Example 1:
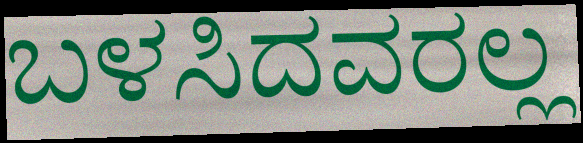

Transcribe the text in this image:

ಬಳಸಿದವರಲ್ಲ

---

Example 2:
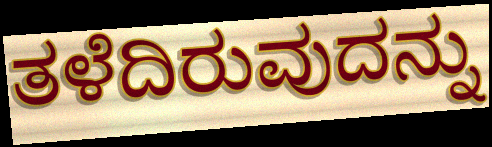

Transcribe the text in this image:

ತಳೆದಿರುವುದನ್ನು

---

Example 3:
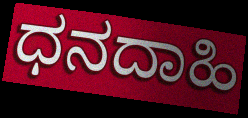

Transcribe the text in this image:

ಧನದಾಹಿ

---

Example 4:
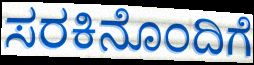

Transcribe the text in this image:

ಸರಕಿನೊಂದಿಗೆ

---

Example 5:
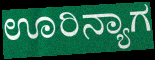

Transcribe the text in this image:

ಊರಿನ್ಯಾಗ